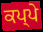
ਕਪ੍ਪੇ